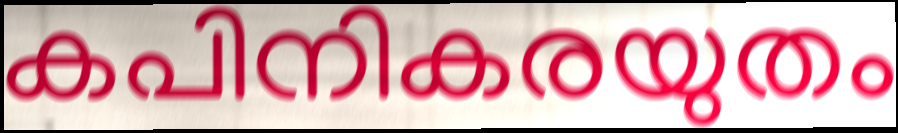
കപിനികരയുതം